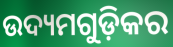
ଉଦ୍ୟମଗୁଡ଼ିକର